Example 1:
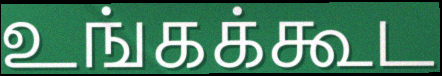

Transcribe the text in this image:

உங்கக்கூட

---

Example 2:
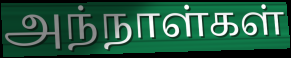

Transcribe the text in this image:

அந்நாள்கள்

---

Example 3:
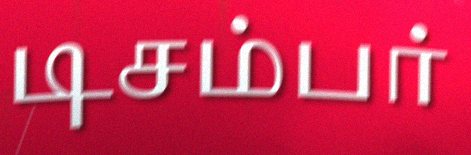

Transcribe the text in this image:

டிசம்பர்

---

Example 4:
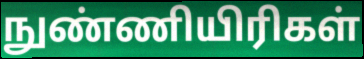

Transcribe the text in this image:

நுண்ணியிரிகள்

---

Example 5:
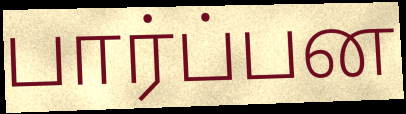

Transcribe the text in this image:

பார்ப்பன